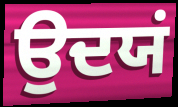
ਉਦਯਂ